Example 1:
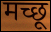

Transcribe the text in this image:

मच्छू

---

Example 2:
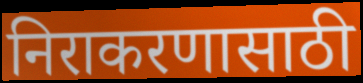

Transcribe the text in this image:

निराकरणासाठी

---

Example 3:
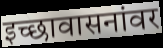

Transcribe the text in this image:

इच्छावासनांवर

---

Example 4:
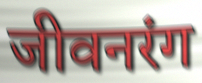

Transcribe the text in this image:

जीवनरंग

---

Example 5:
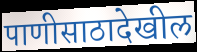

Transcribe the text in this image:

पाणीसाठादेखील